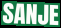
SANJE